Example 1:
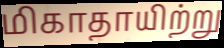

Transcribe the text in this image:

மிகாதாயிற்று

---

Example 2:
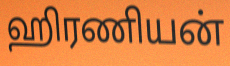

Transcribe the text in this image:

ஹிரணியன்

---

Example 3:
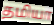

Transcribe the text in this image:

தமியா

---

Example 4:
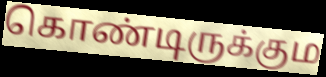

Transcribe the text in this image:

கொண்டிருக்கும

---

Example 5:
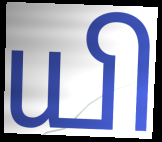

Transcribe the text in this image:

யி